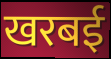
खरबई